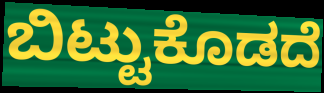
ಬಿಟ್ಟುಕೊಡದೆ